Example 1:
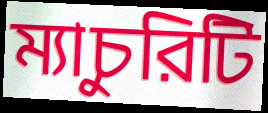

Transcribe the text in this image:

ম্যাচুরিটি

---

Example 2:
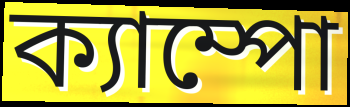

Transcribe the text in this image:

ক্যাম্পো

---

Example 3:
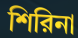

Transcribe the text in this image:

শিরিনা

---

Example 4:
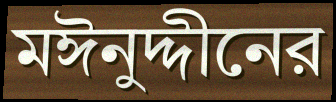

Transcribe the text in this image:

মঈনুদ্দীনের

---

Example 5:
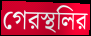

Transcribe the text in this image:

গেরস্থলির